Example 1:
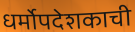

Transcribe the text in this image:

धर्मोपदेशकाची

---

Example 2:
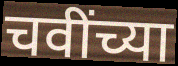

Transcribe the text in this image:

चवींच्या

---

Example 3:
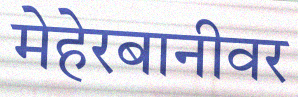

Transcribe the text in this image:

मेहेरबानीवर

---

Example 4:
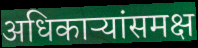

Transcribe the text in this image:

अधिकाऱ्यांसमक्ष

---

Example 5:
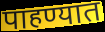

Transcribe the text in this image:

पाहण्यात